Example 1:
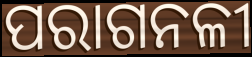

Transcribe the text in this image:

ପରାଗନଳୀ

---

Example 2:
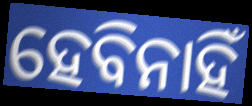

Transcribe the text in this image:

ହେବିନାହିଁ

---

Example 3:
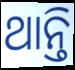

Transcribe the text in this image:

ଥାନ୍ତି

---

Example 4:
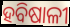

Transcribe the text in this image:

ହବିଷାଳୀ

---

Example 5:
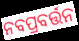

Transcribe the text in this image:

ନବପ୍ରବର୍ତ୍ତନ